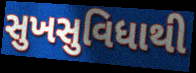
સુખસુવિધાથી